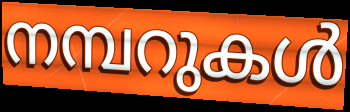
നമ്പറുകൾ